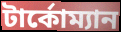
টার্কোম্যান